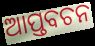
ଆପ୍ତବଚନ